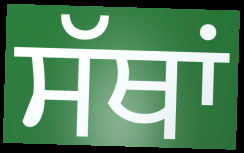
ਸੱਥਾਂ